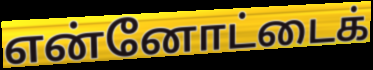
என்னோட்டைக்